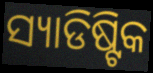
ସ୍ୟାଡିଷ୍ଟିକ